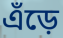
এঁড়ে